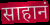
साहानं